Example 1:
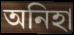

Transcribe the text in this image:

অনিহা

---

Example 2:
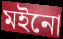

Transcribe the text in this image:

মইনো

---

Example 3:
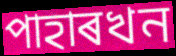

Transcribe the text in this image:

পাহাৰখন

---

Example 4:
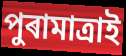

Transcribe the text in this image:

পুৰামাত্ৰাই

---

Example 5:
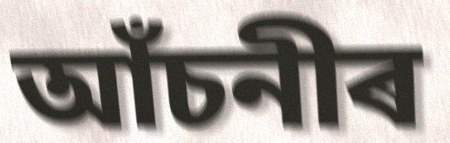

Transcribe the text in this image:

আঁচনীৰ